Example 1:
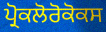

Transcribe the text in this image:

ਪ੍ਰੋਕਲੋਰੋਕੋਕਸ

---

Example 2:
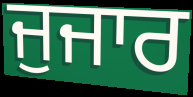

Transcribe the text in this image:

ਜੁਜਾਰ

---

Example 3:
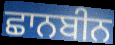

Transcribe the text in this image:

ਛਾਨਬੀਨ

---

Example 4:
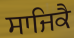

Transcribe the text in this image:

ਸਾਜਿਕੈ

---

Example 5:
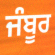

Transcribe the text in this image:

ਜੰਬੂਰ